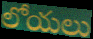
లోయలు